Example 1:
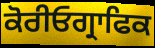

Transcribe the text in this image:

ਕੋਰੀਓਗ੍ਰਾਫਿਕ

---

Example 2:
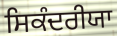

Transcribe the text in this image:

ਸਿਕੰਦਰੀਯਾ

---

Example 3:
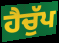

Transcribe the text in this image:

ਹੈਚੁੱਪ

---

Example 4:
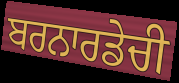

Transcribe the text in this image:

ਬਰਨਾਰਡੇਚੀ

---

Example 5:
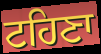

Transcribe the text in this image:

ਟਹਿਣਾ